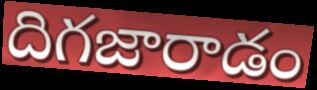
దిగజారాడం